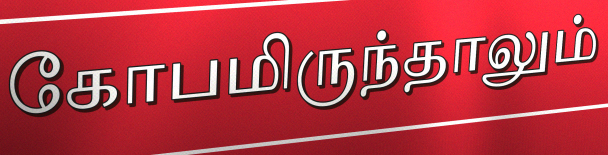
கோபமிருந்தாலும்